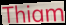
Thiam